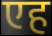
एह